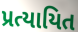
પ્રત્યાયિત